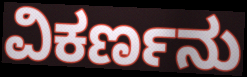
ವಿಕರ್ಣನು